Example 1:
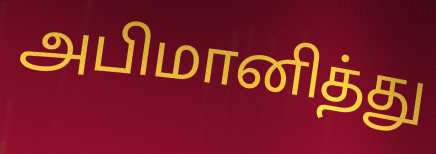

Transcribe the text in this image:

அபிமானித்து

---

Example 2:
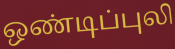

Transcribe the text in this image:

ஒண்டிப்புலி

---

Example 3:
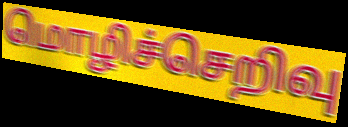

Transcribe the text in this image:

மொழிச்செறிவு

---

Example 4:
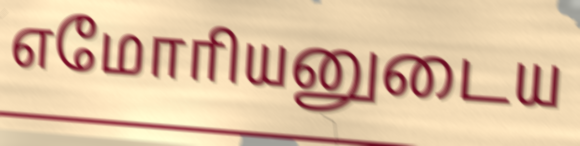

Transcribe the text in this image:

எமோரியனுடைய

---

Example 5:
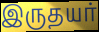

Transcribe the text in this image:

இருதயர்